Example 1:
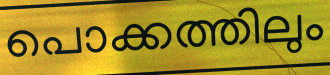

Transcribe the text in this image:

പൊക്കത്തിലും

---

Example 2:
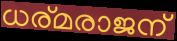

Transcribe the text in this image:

ധര്മരാജന്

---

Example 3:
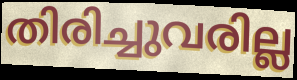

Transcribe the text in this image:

തിരിച്ചുവരില്ല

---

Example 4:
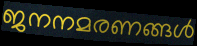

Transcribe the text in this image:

ജനനമരണങ്ങൾ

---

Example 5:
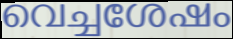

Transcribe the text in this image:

വെച്ചശേഷം